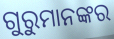
ଗୁରୁମାନଙ୍କର